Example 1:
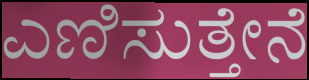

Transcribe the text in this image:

ಎಣಿಸುತ್ತೇನೆ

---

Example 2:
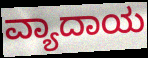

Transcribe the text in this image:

ವ್ಯಾದಾಯ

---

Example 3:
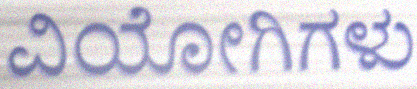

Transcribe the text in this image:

ವಿಯೋಗಿಗಳು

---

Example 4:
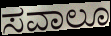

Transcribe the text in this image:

ಸವಾಲೂ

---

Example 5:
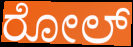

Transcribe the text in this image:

ರೋಲ್